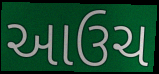
આઉચ